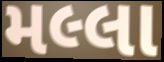
મલ્લા